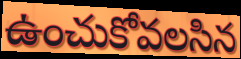
ఉంచుకోవలసిన